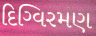
દિગ્વિરમણ